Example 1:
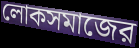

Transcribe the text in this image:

লোকসমাজের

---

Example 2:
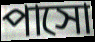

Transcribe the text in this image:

পাসো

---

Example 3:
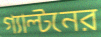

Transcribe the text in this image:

গ্যাল্টনের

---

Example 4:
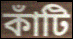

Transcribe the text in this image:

কাঁটি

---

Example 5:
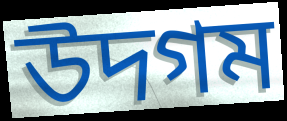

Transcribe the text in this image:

উদগম